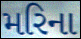
મરિના